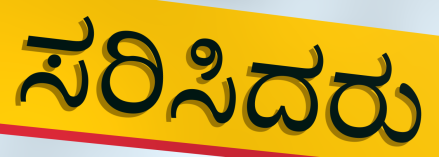
ಸರಿಸಿದರು